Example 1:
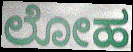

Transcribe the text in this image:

ಲೋಹ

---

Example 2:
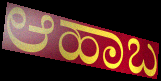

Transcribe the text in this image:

ಆಹಾಬ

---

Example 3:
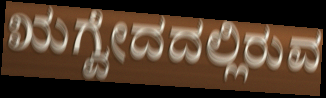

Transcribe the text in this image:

ಋಗ್ವೇದದಲ್ಲಿರುವ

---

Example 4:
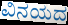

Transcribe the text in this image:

ವಿನಯದ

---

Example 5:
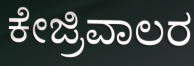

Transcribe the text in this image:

ಕೇಜ್ರಿವಾಲರ